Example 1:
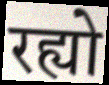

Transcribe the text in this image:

रह्यो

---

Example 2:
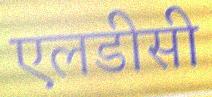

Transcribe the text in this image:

एलडीसी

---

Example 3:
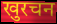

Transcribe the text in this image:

खुरचन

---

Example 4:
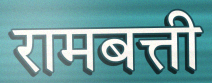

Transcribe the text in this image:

रामबत्ती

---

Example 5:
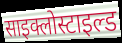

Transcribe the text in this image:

साइक्लोस्टाइल्ड